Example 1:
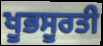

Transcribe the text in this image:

ਖੂਭਸੂਰਤੀ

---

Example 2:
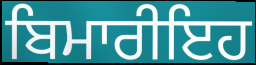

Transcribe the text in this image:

ਬਿਮਾਰੀਇਹ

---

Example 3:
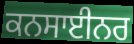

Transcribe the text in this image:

ਕਨਸਾਈਨਰ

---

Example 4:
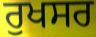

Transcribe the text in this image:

ਰੁਖਸਰ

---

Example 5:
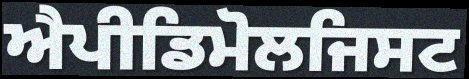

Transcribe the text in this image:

ਐਪੀਡਿਮੋਲਜਿਸਟ